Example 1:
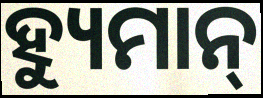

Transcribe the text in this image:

ହ୍ୟୁମାନ୍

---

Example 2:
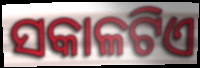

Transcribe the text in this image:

ସକାଳଟିଏ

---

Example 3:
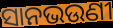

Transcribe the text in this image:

ସାନଭଉଣୀ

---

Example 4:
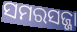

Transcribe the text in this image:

ସମରସଜ୍ଜା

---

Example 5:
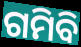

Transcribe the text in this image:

ଗମିବି